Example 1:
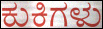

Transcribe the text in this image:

ಕುಕಿಗಳು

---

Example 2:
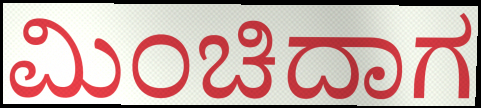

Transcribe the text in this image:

ಮಿಂಚಿದಾಗ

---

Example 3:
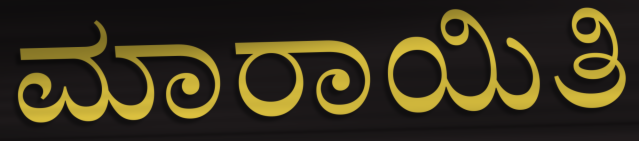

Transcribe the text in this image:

ಮಾರಾಯಿತಿ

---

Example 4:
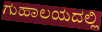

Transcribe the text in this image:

ಗುಹಾಲಯದಲ್ಲಿ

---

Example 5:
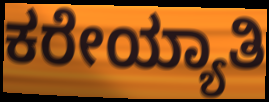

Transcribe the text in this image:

ಕರೇಯ್ಯಾತಿ